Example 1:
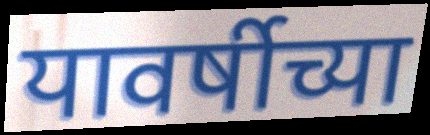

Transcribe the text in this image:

यावर्षीच्या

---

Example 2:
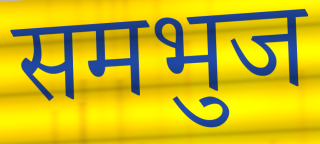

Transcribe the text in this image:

समभुज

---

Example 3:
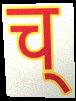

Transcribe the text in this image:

च्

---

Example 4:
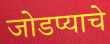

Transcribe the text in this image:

जोडप्याचे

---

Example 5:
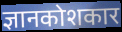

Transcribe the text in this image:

ज्ञानकोशकार